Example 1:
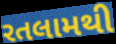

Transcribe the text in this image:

રતલામથી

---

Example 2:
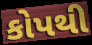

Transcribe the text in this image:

કોપથી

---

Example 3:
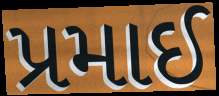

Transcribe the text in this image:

પ્રમાઈ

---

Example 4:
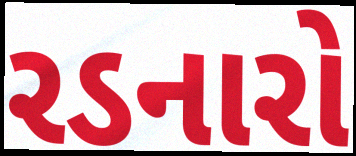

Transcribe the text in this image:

રડનારો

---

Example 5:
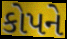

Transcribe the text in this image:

કોપને